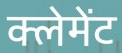
क्लेमेंट